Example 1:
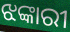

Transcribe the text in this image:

ଝଙ୍କାରୀ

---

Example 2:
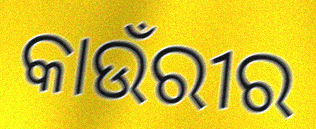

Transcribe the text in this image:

କାଉଁରୀର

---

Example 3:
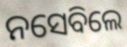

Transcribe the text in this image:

ନସେବିଲେ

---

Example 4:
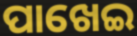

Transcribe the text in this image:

ପାଖେଇ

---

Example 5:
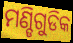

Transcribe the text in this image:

ମଣ୍ଡିଗୁଡିକ